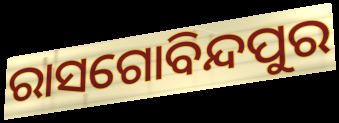
ରାସଗୋବିନ୍ଦପୁର